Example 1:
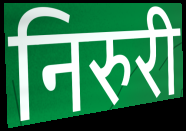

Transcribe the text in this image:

निरुरी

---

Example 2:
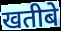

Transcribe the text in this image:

खतीबे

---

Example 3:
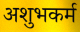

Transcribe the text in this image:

अशुभकर्म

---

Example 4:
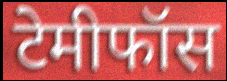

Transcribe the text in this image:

टेमीफॉस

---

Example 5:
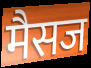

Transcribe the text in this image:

मैसज